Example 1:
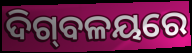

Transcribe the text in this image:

ଦିଗ୍‍ବଳୟରେ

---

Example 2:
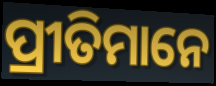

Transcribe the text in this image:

ପ୍ରୀତିମାନେ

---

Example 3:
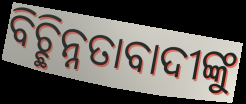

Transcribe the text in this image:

ବିଚ୍ଛିନ୍ନତାବାଦୀଙ୍କୁ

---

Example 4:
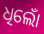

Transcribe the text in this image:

ଧିଲୋଁ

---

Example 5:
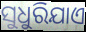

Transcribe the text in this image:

ସୁଧୁରିଯାଏ